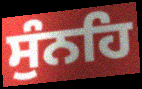
ਸੁੰਨਹਿ